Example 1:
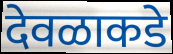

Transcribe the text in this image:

देवळाकडे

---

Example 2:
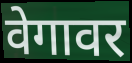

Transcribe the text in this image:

वेगावर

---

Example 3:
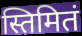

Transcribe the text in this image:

स्तिमितं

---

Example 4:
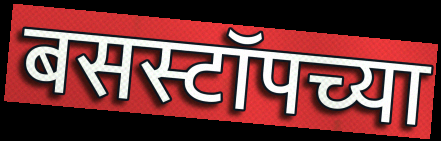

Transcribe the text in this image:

बसस्टॉपच्या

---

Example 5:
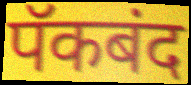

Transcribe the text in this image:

पॅकबंद